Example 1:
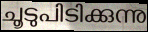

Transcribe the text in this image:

ചൂടുപിടിക്കുന്നു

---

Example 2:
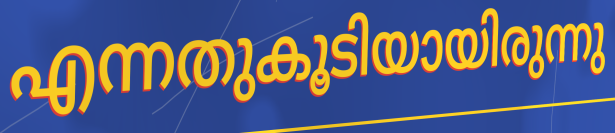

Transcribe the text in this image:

എന്നതുകൂടിയായിരുന്നു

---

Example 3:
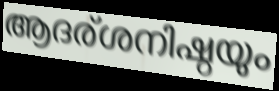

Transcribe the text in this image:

ആദര്ശനിഷ്ഠയും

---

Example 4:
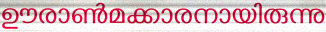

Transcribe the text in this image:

ഊരാൺമക്കാരനായിരുന്നു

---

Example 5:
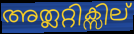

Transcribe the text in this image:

അത്ലറ്റിക്സില്